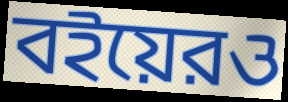
বইয়েরও